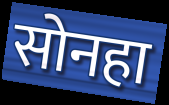
सोनहा